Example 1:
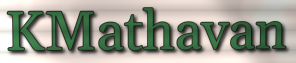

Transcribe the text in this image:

KMathavan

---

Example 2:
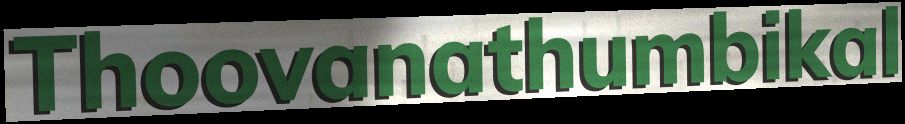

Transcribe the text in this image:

Thoovanathumbikal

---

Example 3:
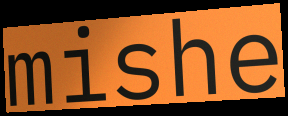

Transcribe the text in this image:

mishe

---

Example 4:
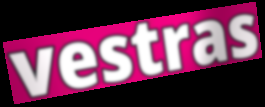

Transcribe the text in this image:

vestras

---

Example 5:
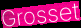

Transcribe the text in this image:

Grosset